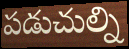
పడుచుల్ని